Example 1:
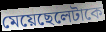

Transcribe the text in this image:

মেয়েছেলেটাকে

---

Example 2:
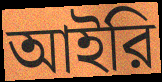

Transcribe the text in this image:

আইরি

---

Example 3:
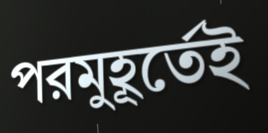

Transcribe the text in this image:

পরমুহূর্তেই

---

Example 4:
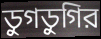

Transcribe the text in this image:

ডুগডুগির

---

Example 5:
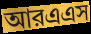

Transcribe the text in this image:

আরএএস